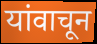
यांवाचून